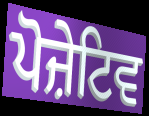
ਪੋਜ਼ੇਟਿਵ